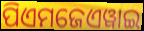
ପିଏମଜେଏୱାଇ